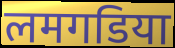
लमगडिया